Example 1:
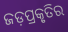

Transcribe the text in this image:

ଜଡ଼ପ୍ରକୃତିର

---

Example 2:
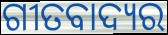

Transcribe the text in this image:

ଗୀତବାଦ୍ୟର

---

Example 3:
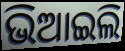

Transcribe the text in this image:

ଭିଆଇଲି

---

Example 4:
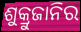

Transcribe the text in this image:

ଶୁକ୍ରୁଜାନିର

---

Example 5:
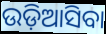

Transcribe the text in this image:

ଉଡ଼ିଆସିବା